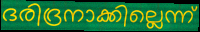
ദരിദ്രനാക്കില്ലെന്ന്